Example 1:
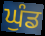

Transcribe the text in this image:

ਘੁੰਡ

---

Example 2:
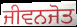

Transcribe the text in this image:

ਜੀਵਨਜੋਤ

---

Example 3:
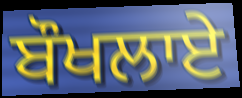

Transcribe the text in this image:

ਬੌਖਲਾਏ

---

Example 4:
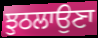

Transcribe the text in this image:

ਝੁਠਲਾਉਣਾ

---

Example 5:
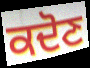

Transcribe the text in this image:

ਕਦੋਣ